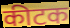
कीटक